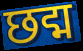
छद्म